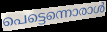
പെട്ടെന്നൊരാൾ